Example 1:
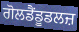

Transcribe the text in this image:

ਗੋਲਡੈਂਡੂਡਲਜ਼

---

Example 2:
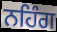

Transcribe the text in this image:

ਨਹਿੰਗ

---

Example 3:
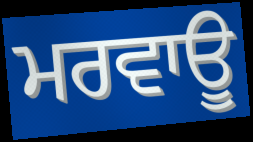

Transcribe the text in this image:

ਮਰਵਾਊ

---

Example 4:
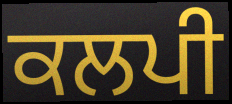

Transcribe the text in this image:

ਕਲਪੀ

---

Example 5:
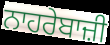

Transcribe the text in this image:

ਨਾਹਰੇਬਾਜ਼ੀ